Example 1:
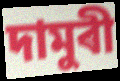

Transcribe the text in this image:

দামুৰী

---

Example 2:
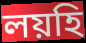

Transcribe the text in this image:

লয়হি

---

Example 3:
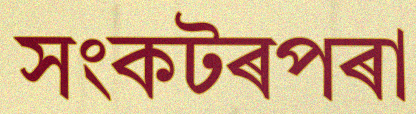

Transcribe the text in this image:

সংকটৰপৰা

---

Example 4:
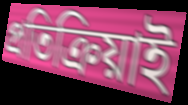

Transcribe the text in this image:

প্ৰতিক্ৰিয়াই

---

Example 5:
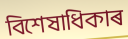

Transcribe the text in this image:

বিশেষাধিকাৰ